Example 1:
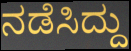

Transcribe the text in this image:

ನಡೆಸಿದ್ದು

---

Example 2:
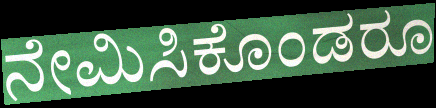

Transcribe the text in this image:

ನೇಮಿಸಿಕೊಂಡರೂ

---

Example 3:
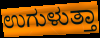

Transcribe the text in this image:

ಉಗುಳುತ್ತಾ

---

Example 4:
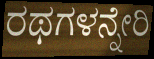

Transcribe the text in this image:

ರಥಗಳನ್ನೇರಿ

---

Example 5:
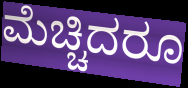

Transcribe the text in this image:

ಮೆಚ್ಚಿದರೂ